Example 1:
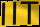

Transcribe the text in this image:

IIT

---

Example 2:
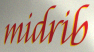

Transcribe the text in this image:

midrib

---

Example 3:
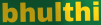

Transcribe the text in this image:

bhulthi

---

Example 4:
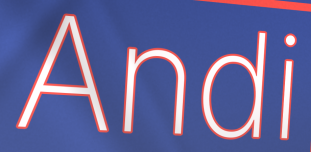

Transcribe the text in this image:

Andi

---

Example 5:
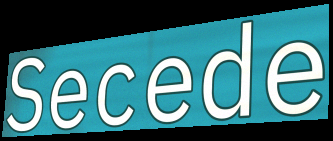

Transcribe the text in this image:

Secede